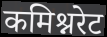
कमिश्नरेट